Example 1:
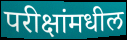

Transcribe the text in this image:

परीक्षांमधील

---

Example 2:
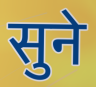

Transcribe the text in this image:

सुने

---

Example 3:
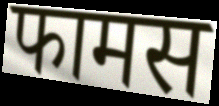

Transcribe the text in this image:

फामस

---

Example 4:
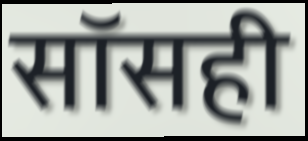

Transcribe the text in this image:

सॉसही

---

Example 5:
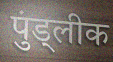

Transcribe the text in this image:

पुंड्लीक